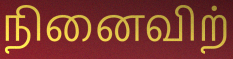
நினைவிற்